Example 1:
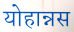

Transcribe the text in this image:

योहान्नस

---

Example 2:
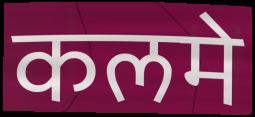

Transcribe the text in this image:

कलमे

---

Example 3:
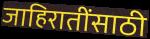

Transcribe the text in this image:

जाहिरातींसाठी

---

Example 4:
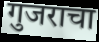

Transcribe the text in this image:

गुजराचा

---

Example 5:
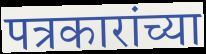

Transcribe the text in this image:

पत्रकारांच्या